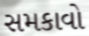
સમકાવો